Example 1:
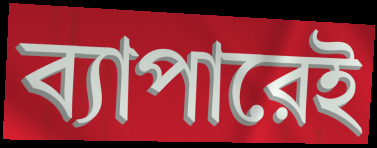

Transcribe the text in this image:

ব্যাপারেই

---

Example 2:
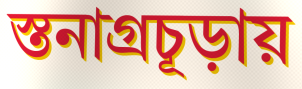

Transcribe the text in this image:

স্তনাগ্রচূড়ায়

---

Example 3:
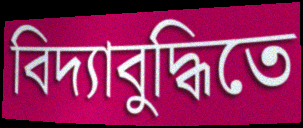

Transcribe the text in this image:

বিদ্যাবুদ্ধিতে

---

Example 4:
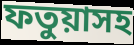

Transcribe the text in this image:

ফতুয়াসহ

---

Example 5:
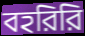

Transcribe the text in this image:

বহরিরি